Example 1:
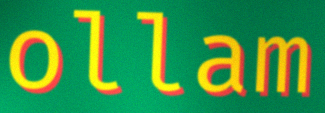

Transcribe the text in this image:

ollam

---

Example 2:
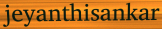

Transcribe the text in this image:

jeyanthisankar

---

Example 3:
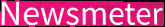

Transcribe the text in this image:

Newsmeter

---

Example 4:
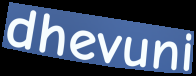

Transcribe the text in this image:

dhevuni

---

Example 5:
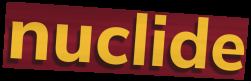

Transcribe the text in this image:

nuclide